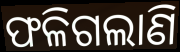
ଫଳିଗଲାଣି